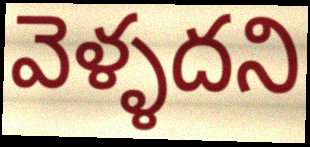
వెళ్ళదని